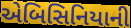
એબિસિનિયાની